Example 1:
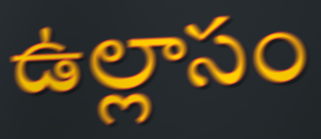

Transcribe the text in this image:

ఉల్లాసం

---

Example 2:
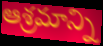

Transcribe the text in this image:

ఆశ్రమాన్ని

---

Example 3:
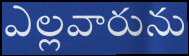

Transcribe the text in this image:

ఎల్లవారును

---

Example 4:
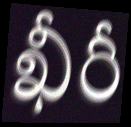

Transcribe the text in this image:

ఖీరీ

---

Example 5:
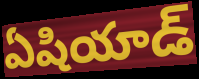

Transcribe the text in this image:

ఏషియాడ్